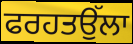
ਫਰਹਤਉੱਲਾ